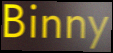
Binny